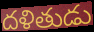
దళితుడు